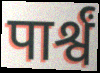
पार्श्वं